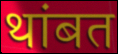
थांबत